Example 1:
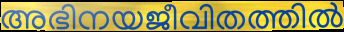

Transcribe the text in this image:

അഭിനയജീവിതത്തിൽ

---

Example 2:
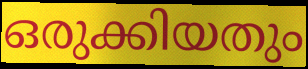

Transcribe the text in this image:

ഒരുക്കിയതും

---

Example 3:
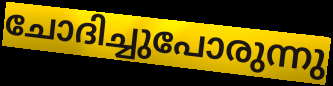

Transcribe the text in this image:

ചോദിച്ചുപോരുന്നു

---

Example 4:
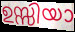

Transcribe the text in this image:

ഉസ്സിയാ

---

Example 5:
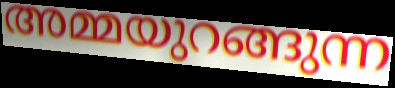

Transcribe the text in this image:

അമ്മയുറങ്ങുന്ന